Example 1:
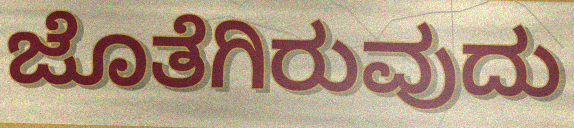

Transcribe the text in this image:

ಜೊತೆಗಿರುವುದು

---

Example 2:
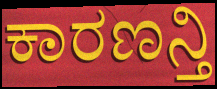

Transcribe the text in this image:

ಕಾರಣನ್ತಿ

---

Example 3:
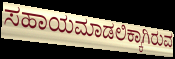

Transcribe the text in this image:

ಸಹಾಯಮಾಡಲಿಕ್ಕಾಗಿರುವ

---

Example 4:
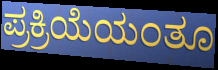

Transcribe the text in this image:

ಪ್ರಕ್ರಿಯೆಯಂತೂ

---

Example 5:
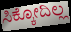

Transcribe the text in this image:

ಸಿಕ್ಕೋದಿಲ್ಲ